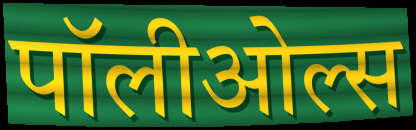
पॉलीओल्स